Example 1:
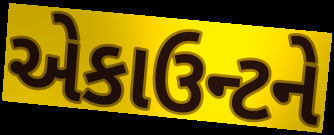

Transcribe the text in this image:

એકાઉન્ટને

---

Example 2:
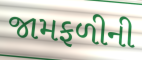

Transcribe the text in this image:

જામફળીની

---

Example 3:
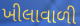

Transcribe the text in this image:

ખીલાવાળી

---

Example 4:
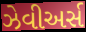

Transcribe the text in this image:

ઝેવીઅર્સ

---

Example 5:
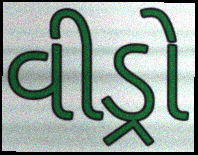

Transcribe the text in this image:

વીડ્રો